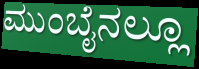
ಮುಂಬೈನಲ್ಲೂ